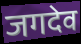
जगदेव